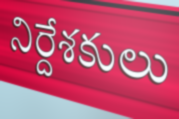
నిర్దేశకులు